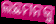
ଲଛମନକୁ